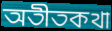
অতীতকথা